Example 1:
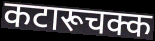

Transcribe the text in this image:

कटारूचक्क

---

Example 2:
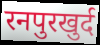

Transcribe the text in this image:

रनपुरखुर्द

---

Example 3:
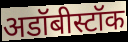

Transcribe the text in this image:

अडॉबीस्टॉक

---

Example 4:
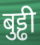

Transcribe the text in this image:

बुड्ढी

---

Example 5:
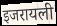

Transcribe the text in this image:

इजरायली